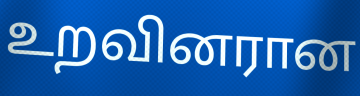
உறவினரான